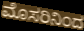
ಮೊಸರಿನಿಂದ